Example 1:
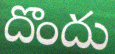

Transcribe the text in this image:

దొందు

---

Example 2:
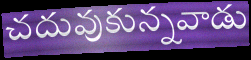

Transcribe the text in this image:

చదువుకున్నవాడు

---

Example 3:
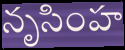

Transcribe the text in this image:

నృసింహ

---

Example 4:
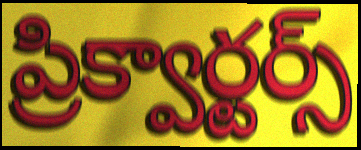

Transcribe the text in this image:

ప్రిక్వార్టర్స్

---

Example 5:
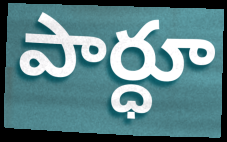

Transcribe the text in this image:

పార్ధూ